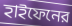
হাইফেনের